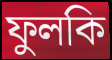
ফুলকি